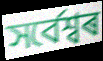
সৰ্বেশ্বৰ